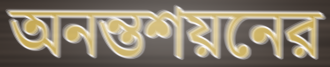
অনন্তশয়নের